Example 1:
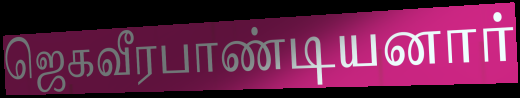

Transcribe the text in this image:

ஜெகவீரபாண்டியனார்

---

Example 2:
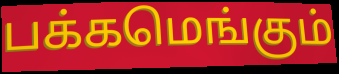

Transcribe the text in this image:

பக்கமெங்கும்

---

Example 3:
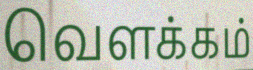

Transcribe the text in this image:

வெளக்கம்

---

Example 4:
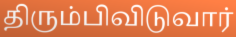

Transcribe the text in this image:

திரும்பிவிடுவார்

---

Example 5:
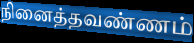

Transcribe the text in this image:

நினைத்தவண்ணம்